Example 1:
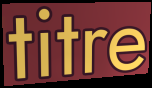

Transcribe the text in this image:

titre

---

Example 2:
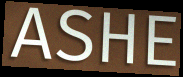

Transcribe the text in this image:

ASHE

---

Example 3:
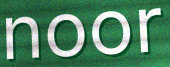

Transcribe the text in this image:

noor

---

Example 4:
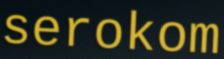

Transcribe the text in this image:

serokom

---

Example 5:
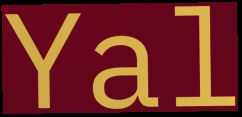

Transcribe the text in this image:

Yal